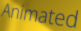
Animated